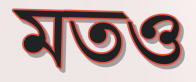
মতও